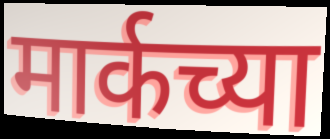
मार्कच्या